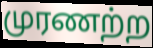
முரணற்ற